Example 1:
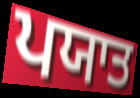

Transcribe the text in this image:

ਪਯਾਤ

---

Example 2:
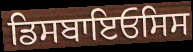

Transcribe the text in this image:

ਡਿਸਬਾਇਓਸਿਸ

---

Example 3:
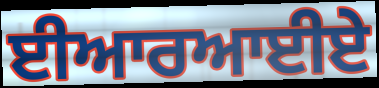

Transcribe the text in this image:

ਈਆਰਆਈਏ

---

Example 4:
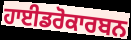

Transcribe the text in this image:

ਹਾਈਡਰੋਕਾਰਬਨ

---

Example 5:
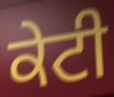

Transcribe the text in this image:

ਕੇਟੀ